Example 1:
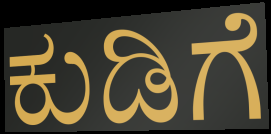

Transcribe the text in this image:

ಕುಡಿಗೆ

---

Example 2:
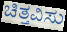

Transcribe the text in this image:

ಚಿತ್ತವಿಸು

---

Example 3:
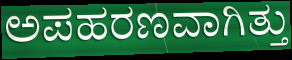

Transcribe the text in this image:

ಅಪಹರಣವಾಗಿತ್ತು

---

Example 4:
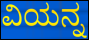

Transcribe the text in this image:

ವಿಯನ್ನ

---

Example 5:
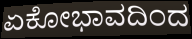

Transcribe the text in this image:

ಏಕೋಭಾವದಿಂದ